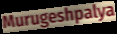
Murugeshpalya